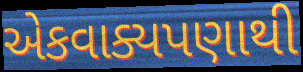
એકવાક્યપણાથી